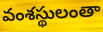
వంశస్థులంతా